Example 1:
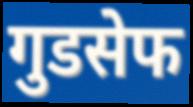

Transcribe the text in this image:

गुडसेफ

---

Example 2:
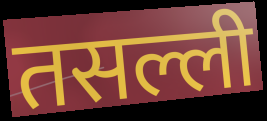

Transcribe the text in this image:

तसल्‍ली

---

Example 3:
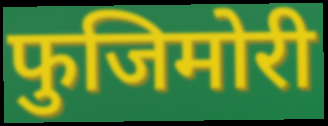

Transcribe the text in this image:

फुजिमोरी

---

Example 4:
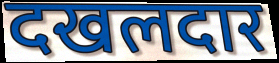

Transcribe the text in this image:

दखलदार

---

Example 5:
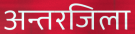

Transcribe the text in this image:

अन्तरजिला